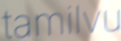
tamilvu